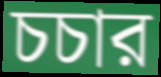
চচার